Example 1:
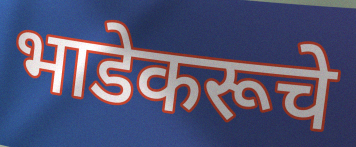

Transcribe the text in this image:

भाडेकरूचे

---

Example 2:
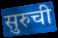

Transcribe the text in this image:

सुरुची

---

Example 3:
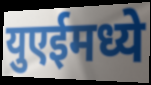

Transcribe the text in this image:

युएईमध्ये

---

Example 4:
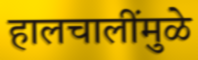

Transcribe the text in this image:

हालचालींमुळे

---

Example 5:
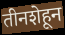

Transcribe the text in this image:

तीनशेहून